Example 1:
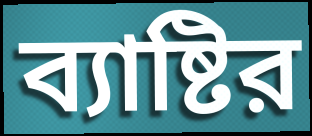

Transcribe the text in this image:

ব্যাষ্টির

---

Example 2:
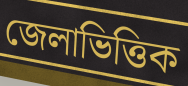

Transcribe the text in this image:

জেলাভিত্তিক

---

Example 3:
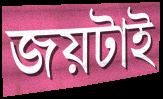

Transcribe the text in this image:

জয়টাই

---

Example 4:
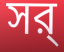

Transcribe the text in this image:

সর্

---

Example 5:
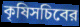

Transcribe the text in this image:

কৃষিসচিবের